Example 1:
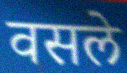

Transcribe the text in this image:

वसले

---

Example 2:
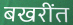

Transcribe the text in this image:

बखरींत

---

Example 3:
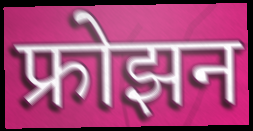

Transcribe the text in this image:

फ्रोझन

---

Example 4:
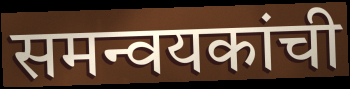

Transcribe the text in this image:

समन्वयकांची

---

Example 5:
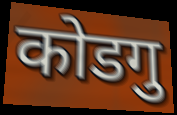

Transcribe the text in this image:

कोडगु